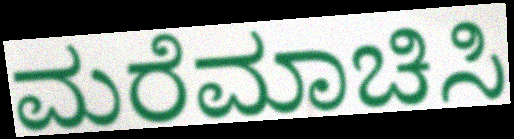
ಮರೆಮಾಚಿಸಿ